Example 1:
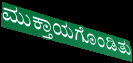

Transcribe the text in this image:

ಮುಕ್ತಾಯಗೊಂಡಿತು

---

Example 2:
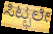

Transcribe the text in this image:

ಸಿಟ್ಟಲೇ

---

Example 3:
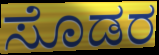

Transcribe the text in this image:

ಸೊಡರ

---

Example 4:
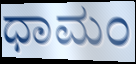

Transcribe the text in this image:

ಧಾಮಂ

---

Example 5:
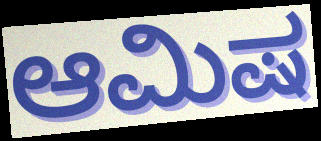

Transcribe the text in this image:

ಆಮಿಷ